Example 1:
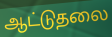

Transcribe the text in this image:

ஆட்டுதலை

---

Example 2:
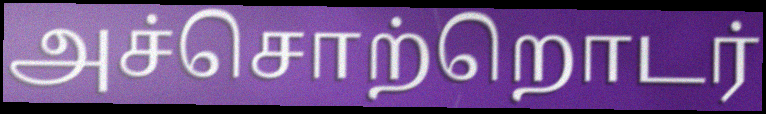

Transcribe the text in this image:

அச்சொற்றொடர்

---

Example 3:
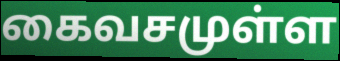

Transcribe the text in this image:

கைவசமுள்ள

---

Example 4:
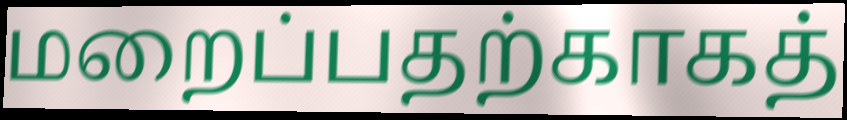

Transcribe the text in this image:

மறைப்பதற்காகத்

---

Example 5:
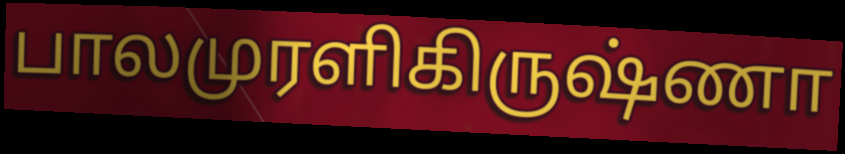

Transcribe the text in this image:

பாலமுரளிகிருஷ்ணா